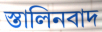
স্তালিনবাদ